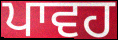
ਪਾਵਹ